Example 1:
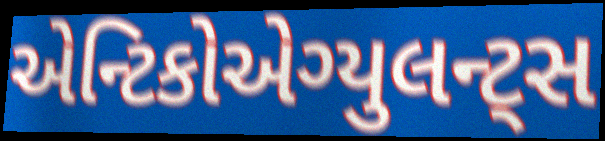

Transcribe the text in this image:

એન્ટિકોએગ્યુલન્ટ્સ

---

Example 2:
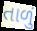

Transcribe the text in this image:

તાળું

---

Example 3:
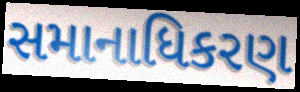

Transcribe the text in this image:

સમાનાધિકરણ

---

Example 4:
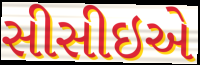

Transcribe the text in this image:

સીસીઇએ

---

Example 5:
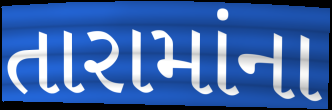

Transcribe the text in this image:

તારામાંના